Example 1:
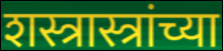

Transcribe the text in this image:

शस्त्रास्त्रांच्या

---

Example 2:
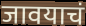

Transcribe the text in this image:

जावयाचं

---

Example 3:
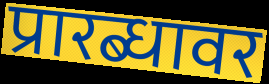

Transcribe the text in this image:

प्रारब्धावर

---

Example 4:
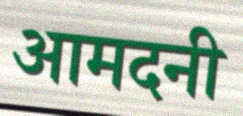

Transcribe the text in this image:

आमदनी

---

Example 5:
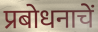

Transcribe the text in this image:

प्रबोधनाचें